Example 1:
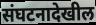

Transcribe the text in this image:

संघटनादेखील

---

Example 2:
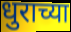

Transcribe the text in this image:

धुराच्या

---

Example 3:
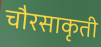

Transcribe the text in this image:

चौरसाकृती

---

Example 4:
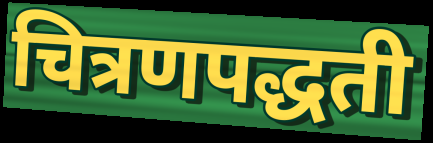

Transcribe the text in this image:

चित्रणपद्धती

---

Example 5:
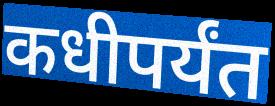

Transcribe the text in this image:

कधीपर्यंत